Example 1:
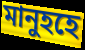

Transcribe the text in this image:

মানুহহে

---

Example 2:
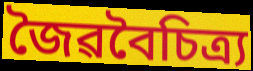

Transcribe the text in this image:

জৈৱবৈচিত্ৰ্য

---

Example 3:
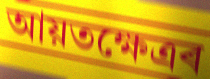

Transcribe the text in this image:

আয়তক্ষেত্ৰৰ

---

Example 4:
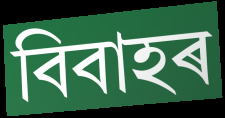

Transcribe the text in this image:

বিবাহৰ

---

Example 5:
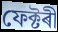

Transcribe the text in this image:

ফেক্টৰী